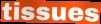
tissues